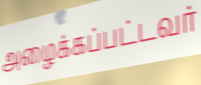
அழைக்கப்பட்டவர்